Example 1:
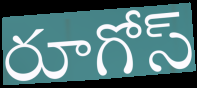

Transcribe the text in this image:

రూగోస్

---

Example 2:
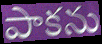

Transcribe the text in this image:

పాకను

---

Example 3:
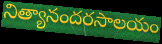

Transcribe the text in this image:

నిత్యానందరసాలయం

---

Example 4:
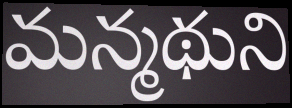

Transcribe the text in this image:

మన్మథుని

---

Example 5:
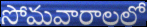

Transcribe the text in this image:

సోమవారాలలో